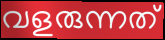
വളരുന്നത്